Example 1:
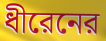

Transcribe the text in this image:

ধীরেনের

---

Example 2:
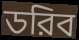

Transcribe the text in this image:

ডরিব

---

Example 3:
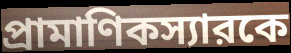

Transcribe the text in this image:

প্রামাণিকস্যারকে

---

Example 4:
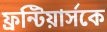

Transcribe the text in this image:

ফ্রন্টিয়ার্সকে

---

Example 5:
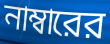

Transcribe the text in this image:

নাম্বারের